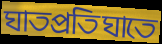
ঘাতপ্রতিঘাতে